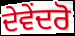
ਦੇਵੇਂਦਰੋ